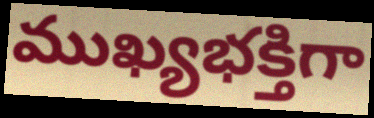
ముఖ్యభక్తిగా